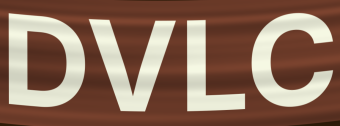
DVLC